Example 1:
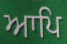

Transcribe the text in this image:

ਆਪਿ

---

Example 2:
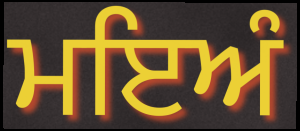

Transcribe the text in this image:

ਮਇਅੰ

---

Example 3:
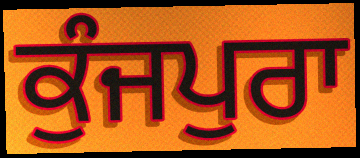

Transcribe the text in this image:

ਕੁੰਜਪੁਰਾ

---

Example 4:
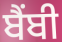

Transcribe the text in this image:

ਬੈਂਬੀ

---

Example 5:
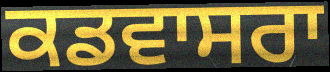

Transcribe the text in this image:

ਕਡਵਾਸਰਾ